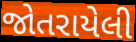
જોતરાયેલી